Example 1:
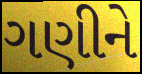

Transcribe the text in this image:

ગણીને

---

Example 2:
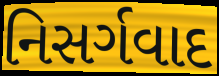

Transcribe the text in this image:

નિસર્ગવાદ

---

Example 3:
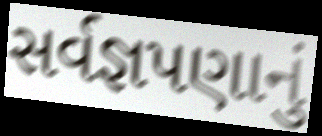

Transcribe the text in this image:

સર્વજ્ઞપણાનું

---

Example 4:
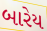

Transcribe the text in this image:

બારેય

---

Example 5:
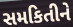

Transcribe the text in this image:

સમકિતીને